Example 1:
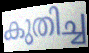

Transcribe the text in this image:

കുതിച്ച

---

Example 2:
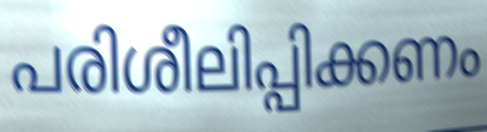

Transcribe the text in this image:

പരിശീലിപ്പിക്കണം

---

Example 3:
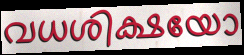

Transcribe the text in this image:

വധശിക്ഷയോ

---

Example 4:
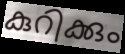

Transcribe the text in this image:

കുറിക്കും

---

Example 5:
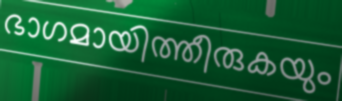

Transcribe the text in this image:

ഭാഗമായിത്തീരുകയും